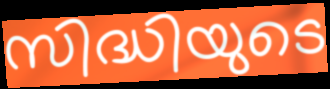
സിദ്ധിയുടെ